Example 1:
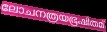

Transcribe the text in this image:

ലോചനത്രയഭൂഷിതമ്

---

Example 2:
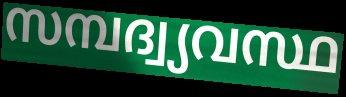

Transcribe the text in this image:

സമ്പദ്വ്യവസ്ഥ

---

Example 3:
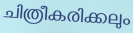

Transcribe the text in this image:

ചിത്രീകരിക്കലും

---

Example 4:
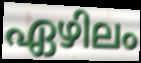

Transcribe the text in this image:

ഏഴിലം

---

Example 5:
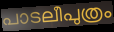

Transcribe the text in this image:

പാടലീപുത്രം